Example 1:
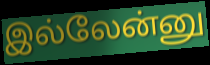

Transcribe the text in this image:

இல்லேன்னு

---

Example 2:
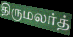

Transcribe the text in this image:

திருமலர்த்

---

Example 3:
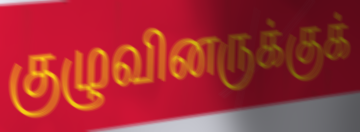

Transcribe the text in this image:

குழுவினருக்குக்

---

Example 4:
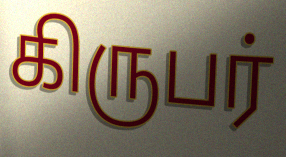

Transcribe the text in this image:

கிருபர்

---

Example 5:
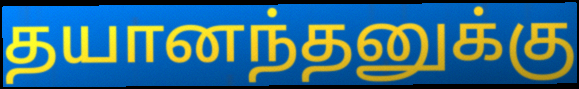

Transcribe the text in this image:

தயானந்தனுக்கு